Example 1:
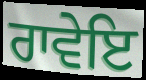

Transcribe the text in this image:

ਰਾਵੇਇ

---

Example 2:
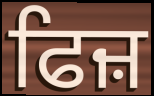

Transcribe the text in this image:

ਫਿਜ਼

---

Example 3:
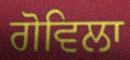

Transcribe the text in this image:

ਗੋਵਿਲਾ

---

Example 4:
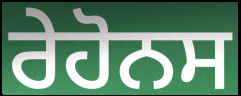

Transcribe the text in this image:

ਰੇਹੋਨਸ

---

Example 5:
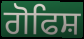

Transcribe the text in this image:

ਗੋਫਿਸ਼